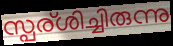
സ്പര്ശിച്ചിരുന്നു